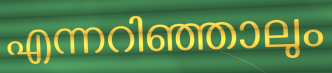
എന്നറിഞ്ഞാലും